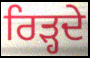
ਰਿੜ੍ਹਦੇ